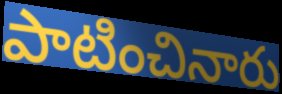
పాటించినారు